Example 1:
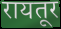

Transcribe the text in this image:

रायतूर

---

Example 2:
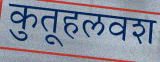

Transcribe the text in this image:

कुतूहलवश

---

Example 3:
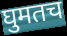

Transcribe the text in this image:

घुमतच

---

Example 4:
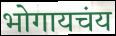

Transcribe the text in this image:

भोगायचंय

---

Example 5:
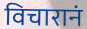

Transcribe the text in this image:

विचारानं